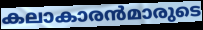
കലാകാരൻമാരുടെ